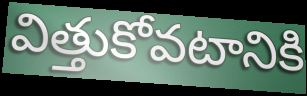
విత్తుకోవటానికి